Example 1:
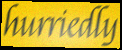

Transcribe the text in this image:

hurriedly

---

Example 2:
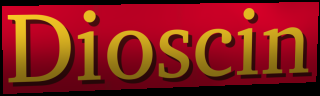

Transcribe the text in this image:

Dioscin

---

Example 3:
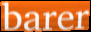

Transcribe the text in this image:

barer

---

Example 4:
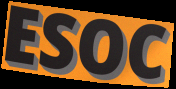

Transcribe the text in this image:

ESOC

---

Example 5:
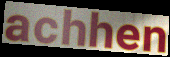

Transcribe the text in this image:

achhen